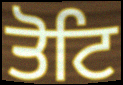
ਤੋਟਿ